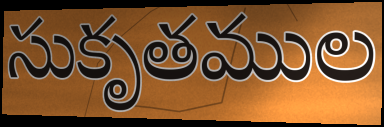
సుకృతముల